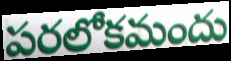
పరలోకమందు